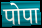
पोपा